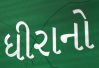
ધીરાનો